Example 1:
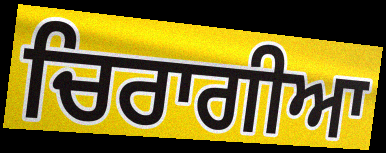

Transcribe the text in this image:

ਚਿਰਾਗੀਆ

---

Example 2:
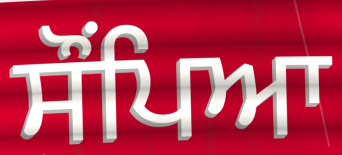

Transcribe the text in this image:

ਸੌਂਪਿਆ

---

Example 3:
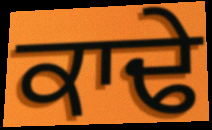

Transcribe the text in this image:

ਕਾਢੇ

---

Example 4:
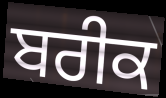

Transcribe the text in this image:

ਬਰੀਕ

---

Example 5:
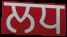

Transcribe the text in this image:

ਲਧ